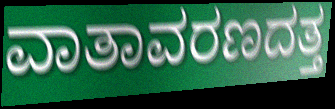
ವಾತಾವರಣದತ್ತ